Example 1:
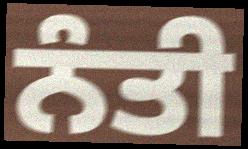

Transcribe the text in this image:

ਨੰਤੀ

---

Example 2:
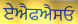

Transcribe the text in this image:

ਏਐਫਐਸਓ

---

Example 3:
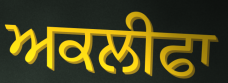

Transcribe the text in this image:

ਅਕਲੀਫਾ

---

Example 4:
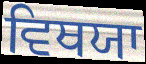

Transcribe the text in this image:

ਵਿਥਯਾ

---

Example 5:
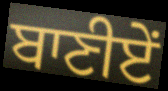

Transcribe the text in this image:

ਬਾਣੀਏਂ